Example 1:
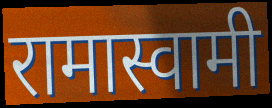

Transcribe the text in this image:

रामास्वामी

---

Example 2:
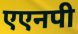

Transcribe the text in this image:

एएनपी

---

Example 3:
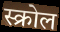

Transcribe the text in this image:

स्क्रोल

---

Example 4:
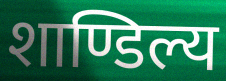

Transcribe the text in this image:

शाण्डिल्य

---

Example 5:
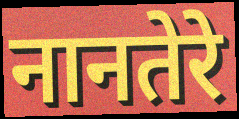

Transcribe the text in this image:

नानतेरे